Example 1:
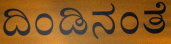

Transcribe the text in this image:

ದಿಂಡಿನಂತೆ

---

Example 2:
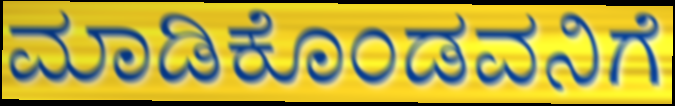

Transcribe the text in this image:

ಮಾಡಿಕೊಂಡವನಿಗೆ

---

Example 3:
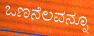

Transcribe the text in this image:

ಒಣನೆಲವನ್ನೂ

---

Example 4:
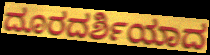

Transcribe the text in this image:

ದೂರದರ್ಶಿಯಾದ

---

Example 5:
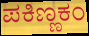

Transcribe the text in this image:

ಪಕಿಣ್ಣಕಂ